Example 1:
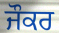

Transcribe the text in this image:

ਜੌਕਰ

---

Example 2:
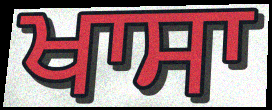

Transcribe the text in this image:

ਖਾਸਾ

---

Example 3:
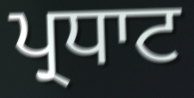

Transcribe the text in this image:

ਪ੍ਰਧਾਟ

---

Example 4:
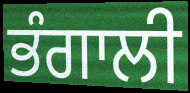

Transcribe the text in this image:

ਭੰਗਾਲੀ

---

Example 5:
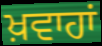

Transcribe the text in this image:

ਖ਼ਵਾਹਾਂ